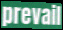
prevail